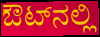
ಔಟ್‌ನಲ್ಲಿ